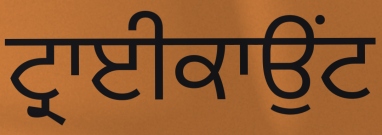
ਟ੍ਰਾਈਕਾਉਂਟ